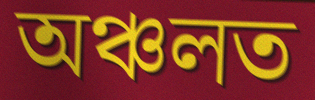
অঞ্চলত